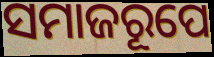
ସମାଜରୂପେ